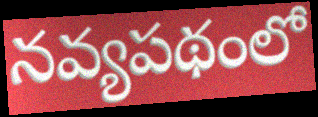
నవ్యపథంలో